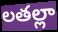
లతల్లా